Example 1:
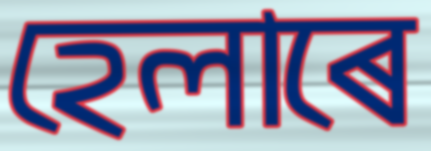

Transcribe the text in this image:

হেলাৰে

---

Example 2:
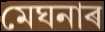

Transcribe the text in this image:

মেঘনাৰ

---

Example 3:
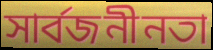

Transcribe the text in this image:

সাৰ্বজনীনতা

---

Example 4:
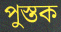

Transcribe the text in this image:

পুস্তক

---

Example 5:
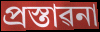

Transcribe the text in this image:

প্ৰস্তাৱনা